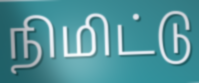
நிமிட்டு